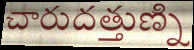
చారుదత్తుణ్ని